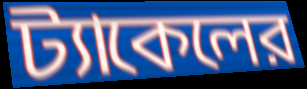
ট্যাকেলের